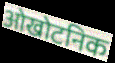
ओखोटनिक